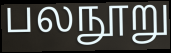
பலநூறு